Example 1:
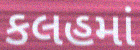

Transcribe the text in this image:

કલહમાં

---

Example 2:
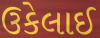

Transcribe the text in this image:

ઉકેલાઈ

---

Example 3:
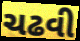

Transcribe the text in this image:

ચઢવી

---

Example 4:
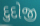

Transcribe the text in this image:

દુદોજી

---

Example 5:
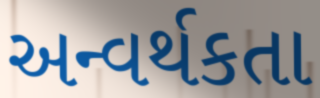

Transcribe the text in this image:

અન્વર્થકતા